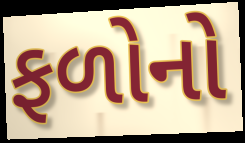
ફળોનો